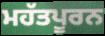
ਮਹੱਤਪੂਰਨ